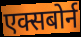
एक्सबोर्न